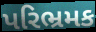
પરિભ્રમક